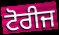
ਟੋਰੀਜ